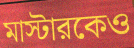
মাস্টারকেও